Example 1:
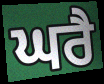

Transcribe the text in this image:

ਘਰੈ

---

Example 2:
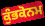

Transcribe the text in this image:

ਕੁੰਭਕੋਨਮ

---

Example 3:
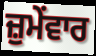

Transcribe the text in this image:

ਜ਼ੁਮੇਂਵਾਰ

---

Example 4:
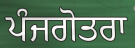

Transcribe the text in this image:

ਪੰਜਗੋਤਰਾ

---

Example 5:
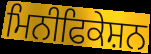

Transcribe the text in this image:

ਮਿਨੀਫਿਕੇਸ਼ਨ